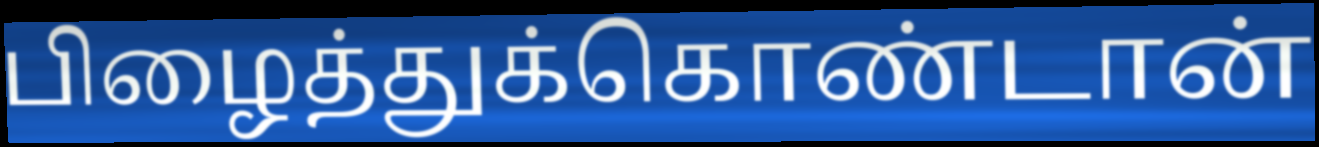
பிழைத்துக்கொண்டான்